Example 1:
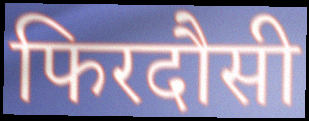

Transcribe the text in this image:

फिरदौसी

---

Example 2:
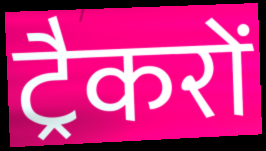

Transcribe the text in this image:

ट्रैकरों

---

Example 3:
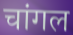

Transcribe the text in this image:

चांगल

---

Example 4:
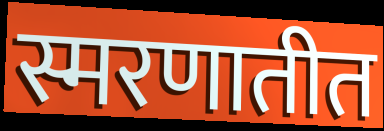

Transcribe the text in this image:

स्मरणातीत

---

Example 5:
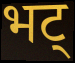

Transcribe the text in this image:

भट्